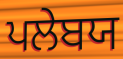
ਪਲੇਬਯ